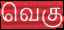
வெகு